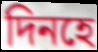
দিনহে